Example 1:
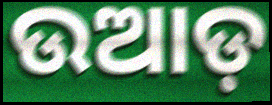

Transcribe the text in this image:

ଉଆଡ଼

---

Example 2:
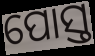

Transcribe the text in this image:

ପୋସ୍ତ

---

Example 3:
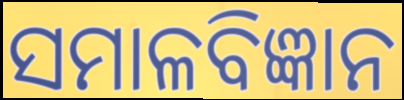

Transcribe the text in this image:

ସମାଳବିଜ୍ଞାନ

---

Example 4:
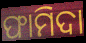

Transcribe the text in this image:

ଫାମିଦା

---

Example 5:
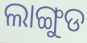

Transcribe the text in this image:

ଲାଙ୍ଗୁଡ